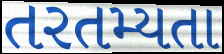
તરતમ્યતા